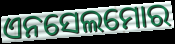
ଏନସେଲମୋର